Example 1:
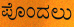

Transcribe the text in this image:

ಪೊಂದಲು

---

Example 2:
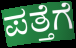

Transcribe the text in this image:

ಪತ್ತೆಗೆ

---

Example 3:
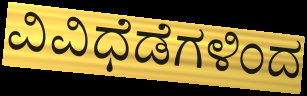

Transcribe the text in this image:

ವಿವಿಧೆಡೆಗಳಿಂದ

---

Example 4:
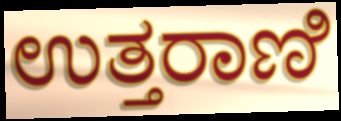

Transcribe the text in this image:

ಉತ್ತರಾಣಿ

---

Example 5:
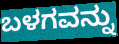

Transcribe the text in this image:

ಬಳಗವನ್ನು